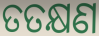
ତତକ୍ଷଣ